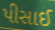
પીસાઈ